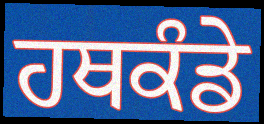
ਹਥਕੰਡੇ